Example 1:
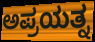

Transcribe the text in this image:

ಅಪ್ರಯತ್ನ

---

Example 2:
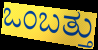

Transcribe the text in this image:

ಒಂಬತ್ತು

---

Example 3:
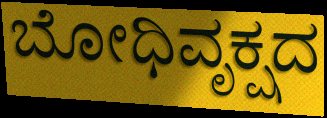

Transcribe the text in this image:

ಬೋಧಿವೃಕ್ಷದ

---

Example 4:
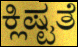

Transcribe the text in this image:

ಕ್ಲಿಷ್ಟತೆ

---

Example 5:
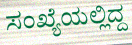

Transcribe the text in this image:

ಸಂಖ್ಯೆಯಲ್ಲಿದ್ದ